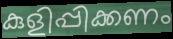
കുളിപ്പിക്കണം